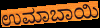
ಉಮಾಬಾಯಿ